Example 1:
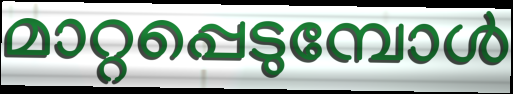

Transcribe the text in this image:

മാറ്റപ്പെടുമ്പോൾ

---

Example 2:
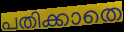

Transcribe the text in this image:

പതിക്കാതെ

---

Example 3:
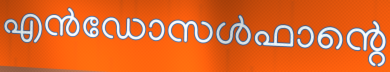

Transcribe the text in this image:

എൻഡോസൾഫാന്റെ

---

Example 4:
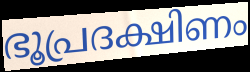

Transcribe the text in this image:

ഭൂപ്രദക്ഷിണം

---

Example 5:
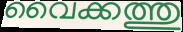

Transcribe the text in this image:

വൈക്കത്തു